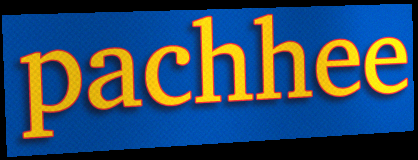
pachhee